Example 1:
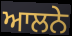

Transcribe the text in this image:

ਆਲਨੇ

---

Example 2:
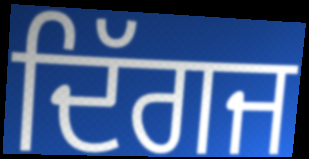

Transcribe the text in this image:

ਦਿੱਗਜ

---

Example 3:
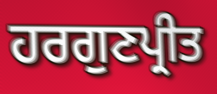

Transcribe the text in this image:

ਹਰਗੁਣਪ੍ਰੀਤ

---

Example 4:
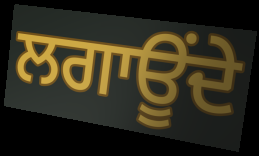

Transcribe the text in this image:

ਲਗਾਊਂਦੇ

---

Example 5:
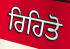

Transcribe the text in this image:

ਰਿਹਿਤੋ